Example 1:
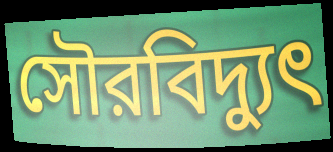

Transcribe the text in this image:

সৌরবিদ্যুৎ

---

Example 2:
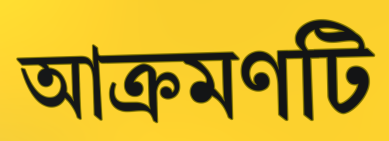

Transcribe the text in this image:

আক্রমণটি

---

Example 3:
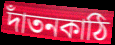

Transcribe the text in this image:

দাঁতনকাঠি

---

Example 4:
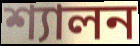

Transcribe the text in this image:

শ্যালন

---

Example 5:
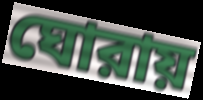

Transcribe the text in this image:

ঘোরায়